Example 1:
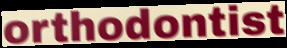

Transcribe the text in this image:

orthodontist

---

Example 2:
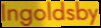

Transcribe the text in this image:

Ingoldsby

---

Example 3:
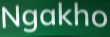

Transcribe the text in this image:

Ngakho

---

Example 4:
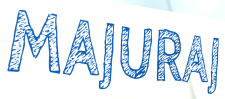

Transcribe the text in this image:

MAJURAJ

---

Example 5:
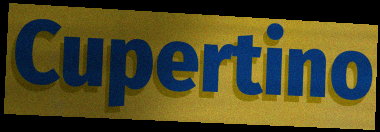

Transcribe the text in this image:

Cupertino